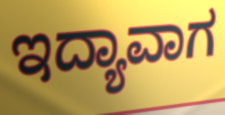
ಇದ್ಯಾವಾಗ